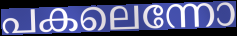
പകലെന്നോ